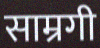
साम्रगी